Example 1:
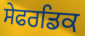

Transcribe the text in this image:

ਸੇਫਰਡਿਕ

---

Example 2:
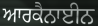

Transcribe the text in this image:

ਆਰਕੈਨਾਈਨ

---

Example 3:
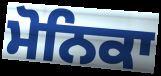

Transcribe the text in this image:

ਮੋਨਿਕਾ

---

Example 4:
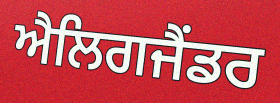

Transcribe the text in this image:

ਐਲਿਗਜੈਂਡਰ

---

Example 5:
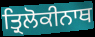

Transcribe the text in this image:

ਤ੍ਰਿਲੋਕੀਨਾਥ